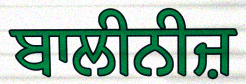
ਬਾਲੀਨੀਜ਼